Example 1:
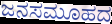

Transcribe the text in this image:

ಜನಸಮೂಹದ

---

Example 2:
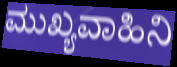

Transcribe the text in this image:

ಮುಖ್ಯವಾಹಿನಿ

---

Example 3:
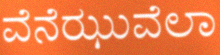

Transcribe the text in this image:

ವೆನೆಝುವೆಲಾ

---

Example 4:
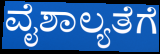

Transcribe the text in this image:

ವೈಶಾಲ್ಯತೆಗೆ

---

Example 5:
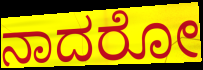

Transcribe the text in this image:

ನಾದರೋ